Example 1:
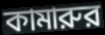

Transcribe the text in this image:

কামারুর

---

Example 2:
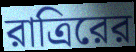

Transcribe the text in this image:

রাত্রিরের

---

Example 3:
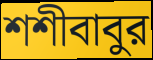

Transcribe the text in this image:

শশীবাবুর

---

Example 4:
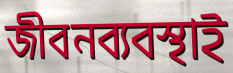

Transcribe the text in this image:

জীবনব্যবস্থাই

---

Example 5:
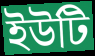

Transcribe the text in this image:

ইউটি